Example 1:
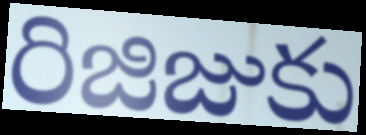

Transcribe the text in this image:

రిజిజుకు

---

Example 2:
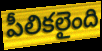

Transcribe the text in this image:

పీలికలైంది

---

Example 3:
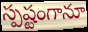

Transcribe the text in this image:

స్పష్టంగానూ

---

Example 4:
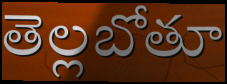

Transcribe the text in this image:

తెల్లబోతూ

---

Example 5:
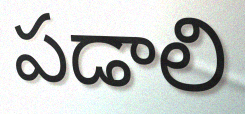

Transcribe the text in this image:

పడాలి